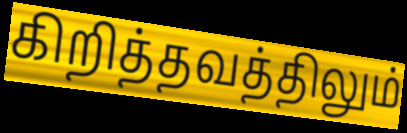
கிறித்தவத்திலும்